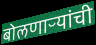
बोलणाऱ्यांची